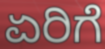
ಏರಿಗೆ